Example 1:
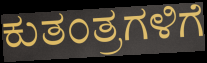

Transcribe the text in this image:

ಕುತಂತ್ರಗಳಿಗೆ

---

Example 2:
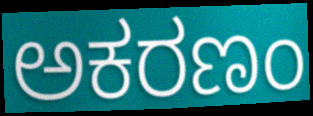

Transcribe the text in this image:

ಅಕರಣಂ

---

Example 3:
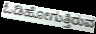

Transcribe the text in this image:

ಓಡಿಹೋಗುತ್ತಿರುವ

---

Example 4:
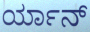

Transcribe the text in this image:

ರ್ಯಾನ್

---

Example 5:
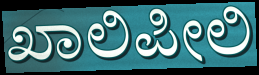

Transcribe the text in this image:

ಖಾಲಿಪೀಲಿ